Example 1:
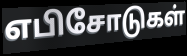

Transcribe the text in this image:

எபிசோடுகள்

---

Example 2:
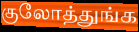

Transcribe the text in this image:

குலோத்துங்க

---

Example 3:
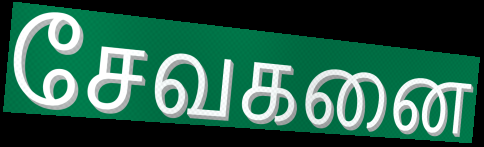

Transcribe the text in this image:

சேவகனை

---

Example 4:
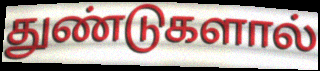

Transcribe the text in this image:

துண்டுகளால்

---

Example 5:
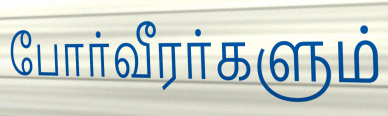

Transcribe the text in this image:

போர்வீரர்களும்